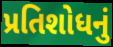
પ્રતિશોધનું